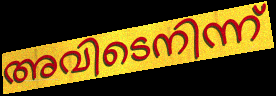
അവിടെനിന്ന്